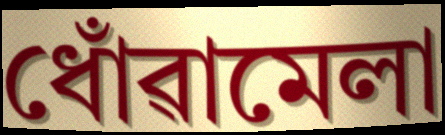
ধোঁৱামেলা